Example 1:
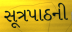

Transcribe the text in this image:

સૂત્રપાઠની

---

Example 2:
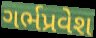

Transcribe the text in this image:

ગર્ભપ્રવેશ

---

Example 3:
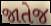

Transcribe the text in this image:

જાતેજ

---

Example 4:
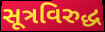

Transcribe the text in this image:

સૂત્રવિરુદ્ધ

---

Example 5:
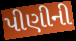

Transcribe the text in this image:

પીણીની